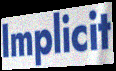
Implicit